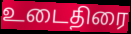
உடைதிரை